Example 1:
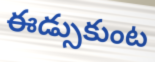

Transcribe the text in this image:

ఈడ్సుకుంట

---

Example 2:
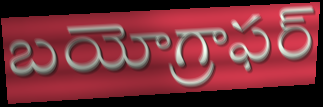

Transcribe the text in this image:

బయోగ్రాఫర్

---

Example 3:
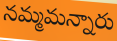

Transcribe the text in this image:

నమ్మమన్నారు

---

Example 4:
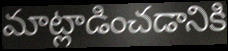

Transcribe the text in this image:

మాట్లాడించడానికి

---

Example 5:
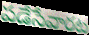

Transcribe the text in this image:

పడేసేవారట